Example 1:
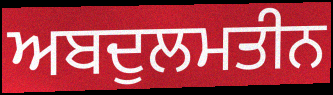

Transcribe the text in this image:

ਅਬਦੁਲਮਤੀਨ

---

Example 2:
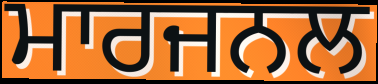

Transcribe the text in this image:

ਮਾਰਜਨਲ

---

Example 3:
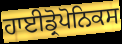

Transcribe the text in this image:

ਹਾਈਡ੍ਰੋਪੋਨਿਕਸ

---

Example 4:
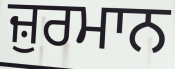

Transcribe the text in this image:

ਜ਼ੁਰਮਾਨ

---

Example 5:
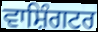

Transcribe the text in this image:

ਵਾਸ਼ਿੰਗਟਰ